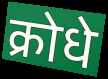
क्रोधे